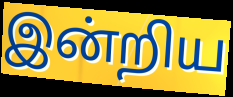
இன்றிய